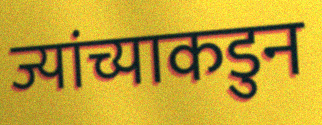
ज्यांच्याकडुन